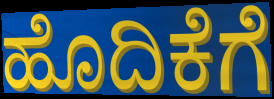
ಹೊದಿಕೆಗೆ